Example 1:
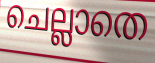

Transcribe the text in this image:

ചെല്ലാതെ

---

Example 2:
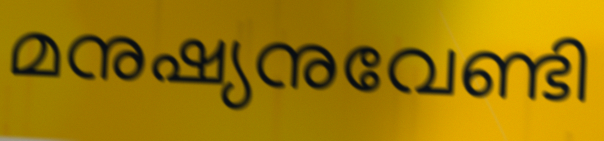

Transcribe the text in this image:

മനുഷ്യനുവേണ്ടി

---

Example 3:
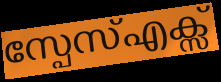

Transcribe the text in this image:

സ്പേസ്എക്സ്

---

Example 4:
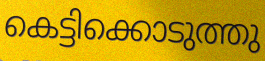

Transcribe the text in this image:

കെട്ടിക്കൊടുത്തു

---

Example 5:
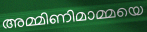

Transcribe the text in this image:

അമ്മിണിമാമ്മയെ